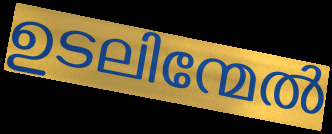
ഉടലിന്മേൽ